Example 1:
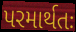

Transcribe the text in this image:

પરમાર્થતઃ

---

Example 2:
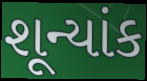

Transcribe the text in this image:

શૂન્યાંક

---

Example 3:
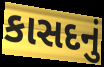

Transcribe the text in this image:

કાસદનું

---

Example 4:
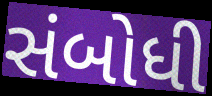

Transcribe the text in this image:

સંબોધી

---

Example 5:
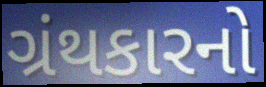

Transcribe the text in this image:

ગ્રંથકારનો